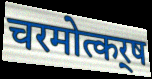
चरमोत्कर्ष